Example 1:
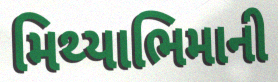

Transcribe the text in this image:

મિથ્યાભિમાની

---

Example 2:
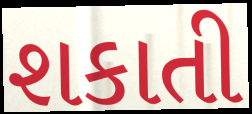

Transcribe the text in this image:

શકાતી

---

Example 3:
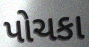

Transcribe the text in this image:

પોચકા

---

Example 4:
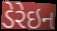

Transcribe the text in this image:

ડેરેઇન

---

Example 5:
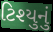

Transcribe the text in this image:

ટિશ્યુનું